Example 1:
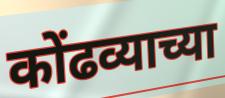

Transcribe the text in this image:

कोंढव्याच्या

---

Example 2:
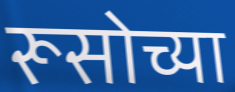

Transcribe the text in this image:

रूसोच्या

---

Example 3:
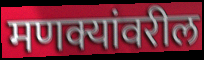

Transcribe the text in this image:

मणक्यांवरील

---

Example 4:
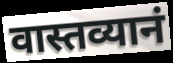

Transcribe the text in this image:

वास्तव्यानं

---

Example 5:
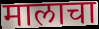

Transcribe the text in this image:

मालाचा